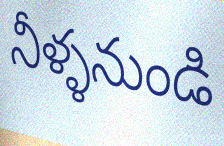
నీళ్ళనుండి